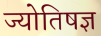
ज्योतिषज्ञ